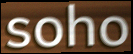
soho